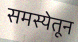
समस्येतून